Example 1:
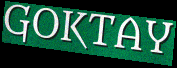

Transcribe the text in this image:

GOKTAY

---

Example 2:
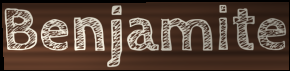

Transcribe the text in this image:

Benjamite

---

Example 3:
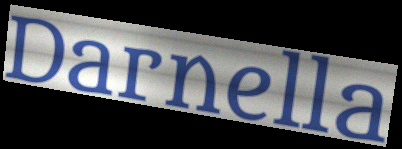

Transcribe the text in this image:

Darnella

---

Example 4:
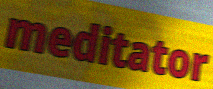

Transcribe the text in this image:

meditator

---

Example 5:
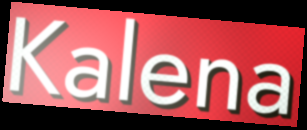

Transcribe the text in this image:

Kalena